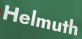
Helmuth